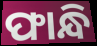
ଫାନ୍ଧି